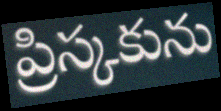
ప్రిస్కకును